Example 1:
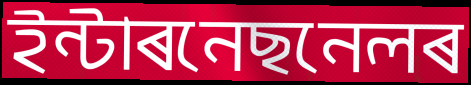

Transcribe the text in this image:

ইন্টাৰনেছনেলৰ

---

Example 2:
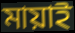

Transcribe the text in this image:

মায়াই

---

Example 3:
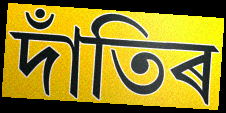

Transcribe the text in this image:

দাঁতিৰ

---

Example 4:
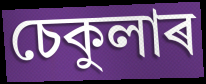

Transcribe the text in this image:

চেকুলাৰ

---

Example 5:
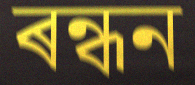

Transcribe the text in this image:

ৰন্ধন